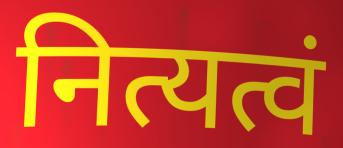
नित्यत्वं